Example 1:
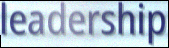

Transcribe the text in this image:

leadership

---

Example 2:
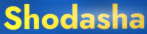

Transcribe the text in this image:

Shodasha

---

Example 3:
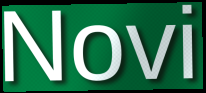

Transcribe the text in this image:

Novi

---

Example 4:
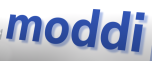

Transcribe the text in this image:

moddi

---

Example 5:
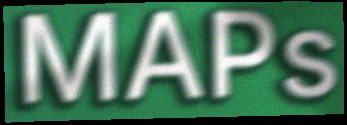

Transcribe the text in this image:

MAPs